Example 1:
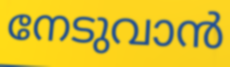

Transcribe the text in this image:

നേടുവാൻ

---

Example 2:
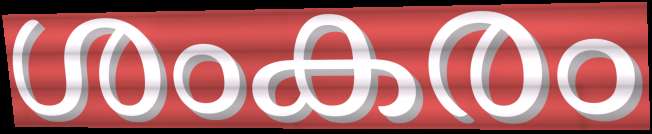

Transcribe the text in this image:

ശംകരം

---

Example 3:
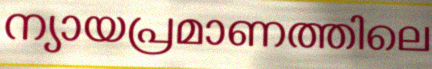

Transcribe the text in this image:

ന്യായപ്രമാണത്തിലെ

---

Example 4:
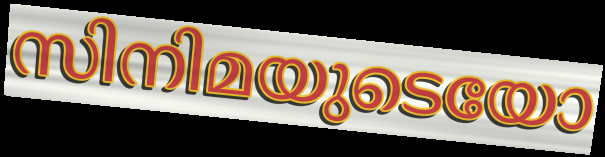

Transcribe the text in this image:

സിനിമയുടെയോ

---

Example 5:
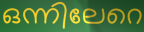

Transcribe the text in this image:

ഒന്നിലേറെ